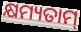
କ୍ଷମ୍ୟତାମ୍